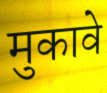
मुकावे